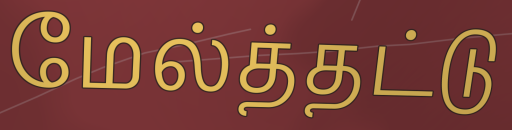
மேல்த்தட்டு